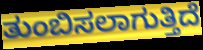
ತುಂಬಿಸಲಾಗುತ್ತಿದೆ